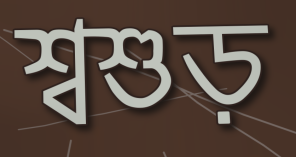
শ্বশুড়